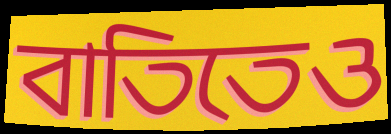
বাতিতেও